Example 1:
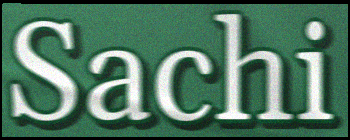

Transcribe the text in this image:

Sachi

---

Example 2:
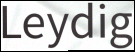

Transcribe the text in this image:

Leydig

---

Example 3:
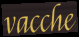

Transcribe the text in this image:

vacche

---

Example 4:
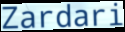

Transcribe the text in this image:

Zardari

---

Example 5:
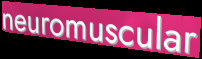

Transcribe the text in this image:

neuromuscular